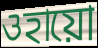
ওহায়ো